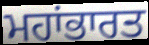
ਮਹਾਂਭਾਰਤ